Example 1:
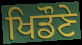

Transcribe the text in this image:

ਖਿਡੌਣੇ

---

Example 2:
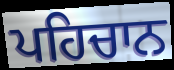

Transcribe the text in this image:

ਪਹਿਚਾਨ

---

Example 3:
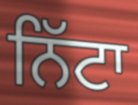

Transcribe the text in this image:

ਨਿੱਟਾ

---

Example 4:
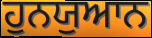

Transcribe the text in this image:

ਹੁਨਯੁਆਨ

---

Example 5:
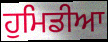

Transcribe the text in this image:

ਹੁਮਿਡੀਆ